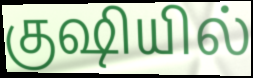
குஷியில்